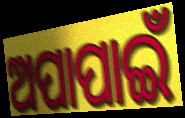
ଅପାପାଇଁ